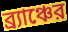
ব্র্যাঞ্চের